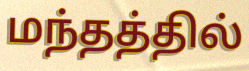
மந்தத்தில்